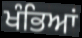
ਖੰਭਿਆਂ